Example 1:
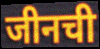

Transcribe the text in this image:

जीनची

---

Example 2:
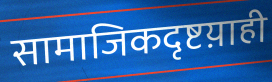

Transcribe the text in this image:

सामाजिकदृष्टय़ाही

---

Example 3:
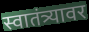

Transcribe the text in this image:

स्वातंत्र्यावर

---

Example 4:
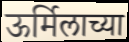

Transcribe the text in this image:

ऊर्मिलाच्या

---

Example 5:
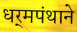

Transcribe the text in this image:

धर्मपंथाने